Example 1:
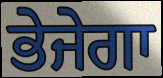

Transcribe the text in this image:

ਭੇਜੇਗਾ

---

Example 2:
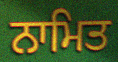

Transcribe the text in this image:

ਨਾਮਿਤ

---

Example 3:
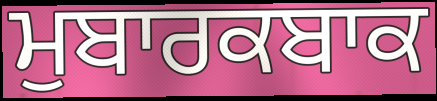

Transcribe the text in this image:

ਮੁਬਾਰਕਬਾਕ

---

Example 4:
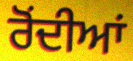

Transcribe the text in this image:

ਰੋਂਦੀਆਂ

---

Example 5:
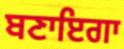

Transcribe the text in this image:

ਬਣਾਇਗਾ